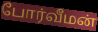
போர்வீமன்